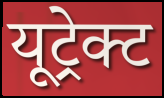
यूट्रेक्ट